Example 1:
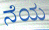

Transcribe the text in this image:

ನೆಯ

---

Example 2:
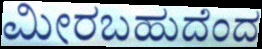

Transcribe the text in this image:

ಮೀರಬಹುದೆಂದ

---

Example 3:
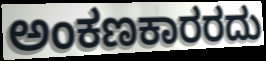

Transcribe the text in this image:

ಅಂಕಣಕಾರರದು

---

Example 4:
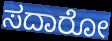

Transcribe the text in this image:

ಸದಾರೋ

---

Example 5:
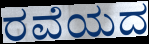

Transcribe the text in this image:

ರವೆಯದ